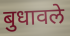
बुधावले